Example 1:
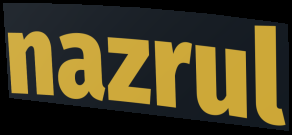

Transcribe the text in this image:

nazrul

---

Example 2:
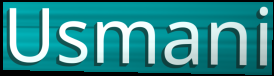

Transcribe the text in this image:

Usmani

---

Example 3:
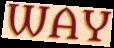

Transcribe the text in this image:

WAY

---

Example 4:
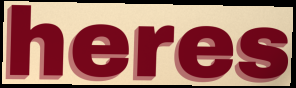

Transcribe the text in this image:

heres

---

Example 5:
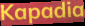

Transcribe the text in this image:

Kapadia